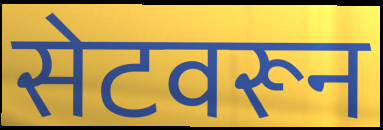
सेटवरून